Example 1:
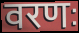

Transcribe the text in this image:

वरणः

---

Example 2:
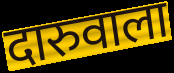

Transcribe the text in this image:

दारुवाला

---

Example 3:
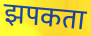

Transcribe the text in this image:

झपकता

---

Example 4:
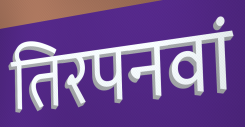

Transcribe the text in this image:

तिरपनवां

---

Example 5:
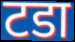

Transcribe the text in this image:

टडा